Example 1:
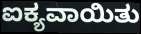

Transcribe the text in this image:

ಐಕ್ಯವಾಯಿತು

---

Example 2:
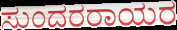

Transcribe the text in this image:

ಸುಂದರರಾಯರ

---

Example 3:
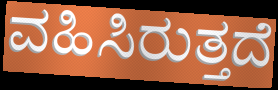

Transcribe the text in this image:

ವಹಿಸಿರುತ್ತದೆ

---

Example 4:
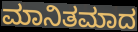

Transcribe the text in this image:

ಮಾನಿತಮಾದ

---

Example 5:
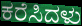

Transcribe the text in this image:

ಕರೆಸಿದಳು